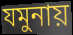
যমুনায়